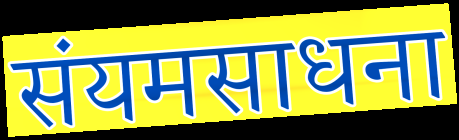
संयमसाधना